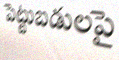
పెట్టుబడులపై